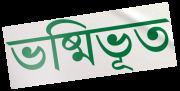
ভষ্মিভূত